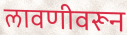
लावणीवरून